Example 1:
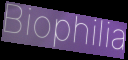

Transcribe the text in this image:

Biophilia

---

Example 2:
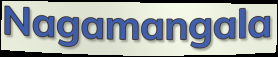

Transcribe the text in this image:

Nagamangala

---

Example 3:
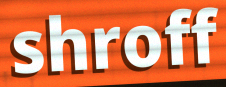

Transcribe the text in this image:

shroff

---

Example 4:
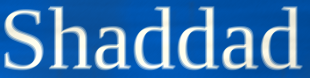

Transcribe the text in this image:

Shaddad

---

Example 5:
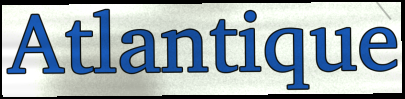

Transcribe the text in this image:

Atlantique